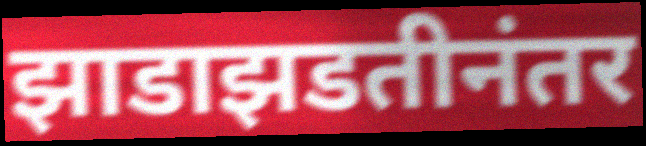
झाडाझडतीनंतर